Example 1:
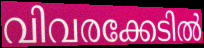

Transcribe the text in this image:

വിവരക്കേടിൽ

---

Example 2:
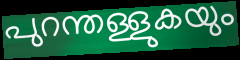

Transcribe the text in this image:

പുറന്തള്ളുകയും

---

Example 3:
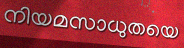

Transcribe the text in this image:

നിയമസാധുതയെ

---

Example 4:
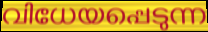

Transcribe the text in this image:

വിധേയപ്പെടുന്ന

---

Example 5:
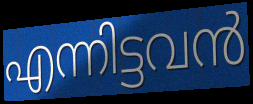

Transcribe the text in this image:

എന്നിട്ടവൻ